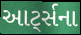
આર્ટ્સના